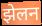
झेलन